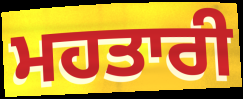
ਮਹਤਾਰੀ